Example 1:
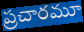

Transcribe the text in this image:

ప్రచారమూ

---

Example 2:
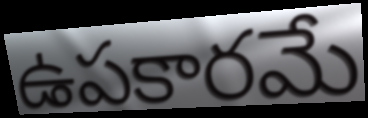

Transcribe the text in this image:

ఉపకారమే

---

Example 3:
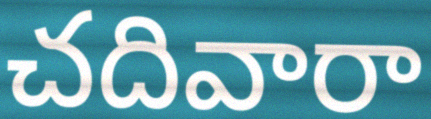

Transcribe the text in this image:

చదివారా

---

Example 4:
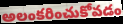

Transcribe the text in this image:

అలంకరించుకోవడం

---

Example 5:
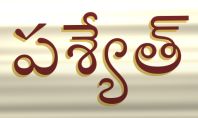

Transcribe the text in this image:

పశ్యేత్